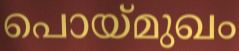
പൊയ്മുഖം